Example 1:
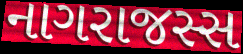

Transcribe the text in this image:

નાગરાજસ્સ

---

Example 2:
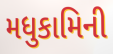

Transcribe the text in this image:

મધુકામિની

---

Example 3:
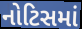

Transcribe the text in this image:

નોટિસમાં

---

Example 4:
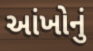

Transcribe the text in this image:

આંખોનું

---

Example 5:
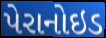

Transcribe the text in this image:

પેરાનોઇડ